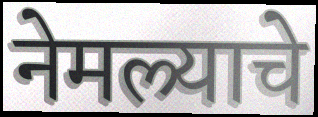
नेमल्याचे